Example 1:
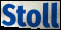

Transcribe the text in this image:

Stoll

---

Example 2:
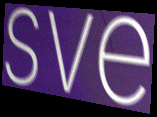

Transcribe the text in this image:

sve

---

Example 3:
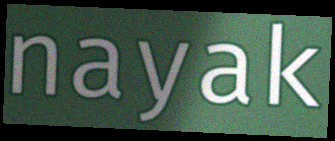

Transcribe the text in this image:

nayak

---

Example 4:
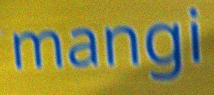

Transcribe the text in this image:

mangi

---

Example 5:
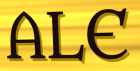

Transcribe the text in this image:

ALE